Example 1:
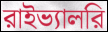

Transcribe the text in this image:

রাইভ্যালরি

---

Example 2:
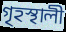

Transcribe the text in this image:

গৃহস্থালী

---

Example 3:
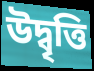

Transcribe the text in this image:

উদ্বৃত্তি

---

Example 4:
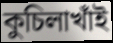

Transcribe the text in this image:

কুচিলাখাঁই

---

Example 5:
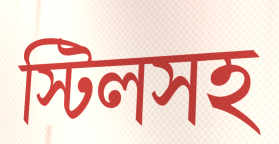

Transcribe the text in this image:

স্টিলসহ